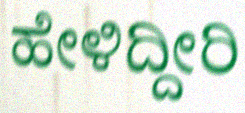
ಹೇಳಿದ್ದೀರಿ